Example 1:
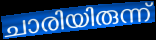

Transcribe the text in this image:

ചാരിയിരുന്ന്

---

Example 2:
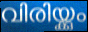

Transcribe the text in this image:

വിരിയ്ക്കും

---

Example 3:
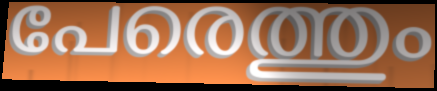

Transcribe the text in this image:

പേരെത്തും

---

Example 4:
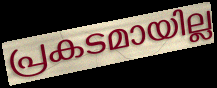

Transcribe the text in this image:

പ്രകടമായില്ല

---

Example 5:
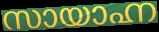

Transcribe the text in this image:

സായാഹ്ന